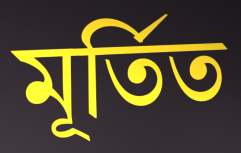
মূৰ্তিত